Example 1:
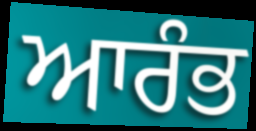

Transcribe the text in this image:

ਆਰੰਭ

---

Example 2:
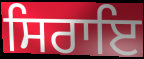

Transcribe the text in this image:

ਸਿਰਾਇ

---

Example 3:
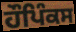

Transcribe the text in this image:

ਹੌਪਿੰਕਸ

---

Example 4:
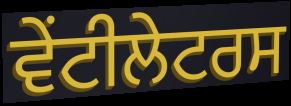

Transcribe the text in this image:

ਵੇਂਟੀਲੇਟਰਸ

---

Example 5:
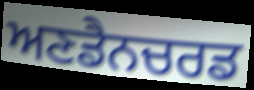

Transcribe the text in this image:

ਅਣਡੈਨਚਰਡ